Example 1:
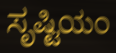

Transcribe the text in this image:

ಸೃಷ್ಟಿಯಂ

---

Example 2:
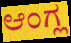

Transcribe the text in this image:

ಆಂಗ್ಲ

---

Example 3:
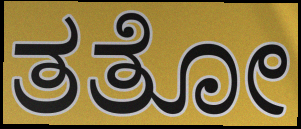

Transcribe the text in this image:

ತತೋ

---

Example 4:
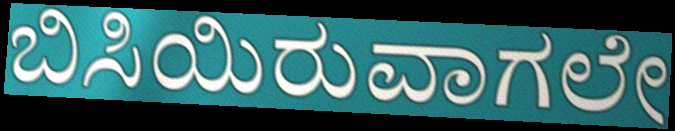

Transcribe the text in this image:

ಬಿಸಿಯಿರುವಾಗಲೇ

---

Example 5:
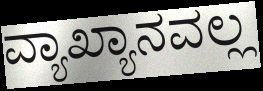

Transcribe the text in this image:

ವ್ಯಾಖ್ಯಾನವಲ್ಲ